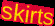
skirts